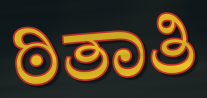
ಠಿತಾತಿ